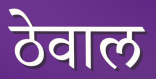
ठेवाल